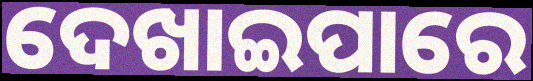
ଦେଖାଇପାରେ